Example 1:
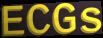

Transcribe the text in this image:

ECGs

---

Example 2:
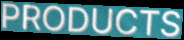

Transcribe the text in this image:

PRODUCTS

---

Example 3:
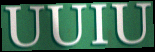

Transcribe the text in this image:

UUIU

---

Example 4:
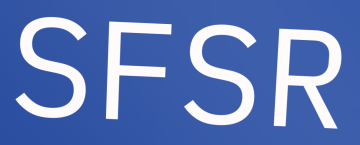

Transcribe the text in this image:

SFSR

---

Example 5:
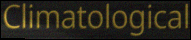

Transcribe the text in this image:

Climatological